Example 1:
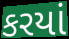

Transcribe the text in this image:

કરયાં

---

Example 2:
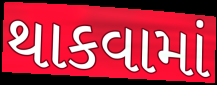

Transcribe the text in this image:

થાકવામાં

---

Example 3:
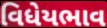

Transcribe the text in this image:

વિધેયભાવ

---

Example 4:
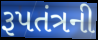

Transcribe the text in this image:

રૂપતંત્રની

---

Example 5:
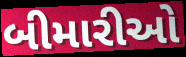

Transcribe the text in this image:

બીમારીઓ